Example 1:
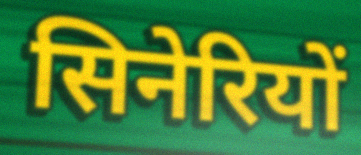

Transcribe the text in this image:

सिनेरियों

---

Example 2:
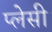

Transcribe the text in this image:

प्लेसी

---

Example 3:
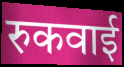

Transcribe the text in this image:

रुकवाई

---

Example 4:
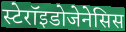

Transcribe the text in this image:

स्टेरॉइडोजेनेसिस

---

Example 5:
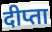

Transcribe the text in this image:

दीप्ता